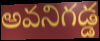
అవనిగడ్డ